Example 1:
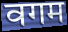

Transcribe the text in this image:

वगम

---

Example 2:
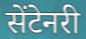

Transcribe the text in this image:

सेंटेनरी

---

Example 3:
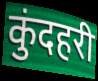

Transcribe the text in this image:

कुंदहरी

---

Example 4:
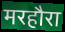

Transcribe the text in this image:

मरहौरा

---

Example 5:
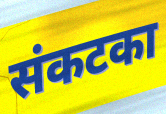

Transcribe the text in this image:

संकटका